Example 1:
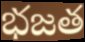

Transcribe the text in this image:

భజత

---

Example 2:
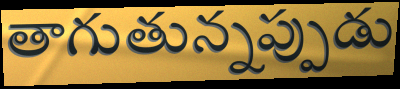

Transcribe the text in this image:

తాగుతున్నప్పుడు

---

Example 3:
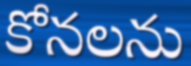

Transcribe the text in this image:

కోనలను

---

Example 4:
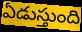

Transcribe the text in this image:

ఏడుస్తుంది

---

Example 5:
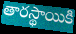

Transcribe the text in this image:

తారస్థాయికి